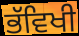
ਭੱਵਿਖੀ